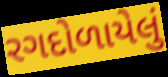
રગદોળાયેલું